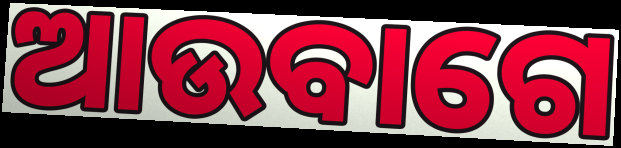
ଆଉବାଗେ